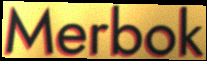
Merbok